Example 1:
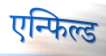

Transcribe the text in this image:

एन्फिल्ड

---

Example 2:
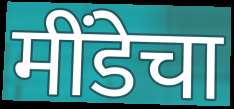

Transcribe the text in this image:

मींडेचा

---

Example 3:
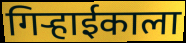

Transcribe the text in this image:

गिर्‍हाईकाला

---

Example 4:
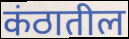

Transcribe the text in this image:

कंठातील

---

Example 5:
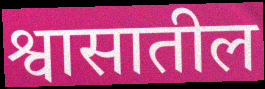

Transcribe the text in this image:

श्वासातील